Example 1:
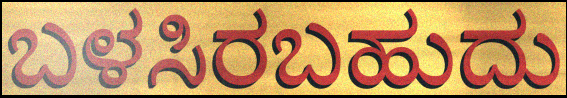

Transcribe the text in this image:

ಬಳಸಿರಬಹುದು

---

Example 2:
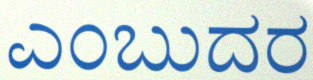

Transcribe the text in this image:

ಎಂಬುದರ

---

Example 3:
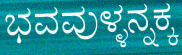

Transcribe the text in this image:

ಭವವುಳ್ಳನ್ನಕ್ಕ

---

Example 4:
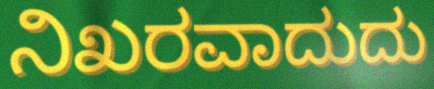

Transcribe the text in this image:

ನಿಖರವಾದುದು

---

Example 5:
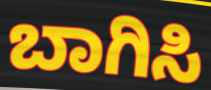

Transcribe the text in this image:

ಬಾಗಿಸಿ